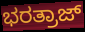
ಭರತ್ರಾಜ್